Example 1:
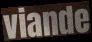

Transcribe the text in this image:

viande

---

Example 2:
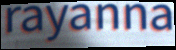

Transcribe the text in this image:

rayanna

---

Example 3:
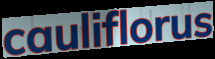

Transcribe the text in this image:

cauliflorus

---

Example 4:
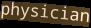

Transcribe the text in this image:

physician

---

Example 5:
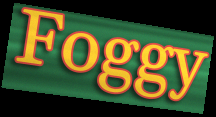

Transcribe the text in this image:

Foggy